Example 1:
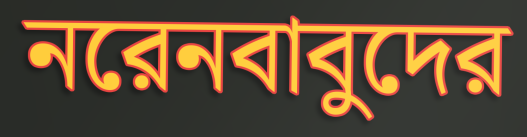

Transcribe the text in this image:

নরেনবাবুদের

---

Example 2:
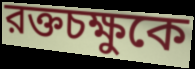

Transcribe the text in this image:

রক্তচক্ষুকে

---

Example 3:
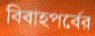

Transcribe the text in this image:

বিবাহপর্বের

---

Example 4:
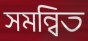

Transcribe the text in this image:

সমন্বিত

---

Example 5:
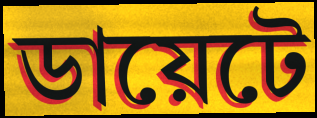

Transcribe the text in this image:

ডায়েটে